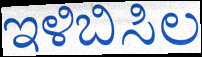
ಇಳಿಬಿಸಿಲ